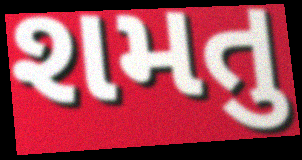
શમતુ